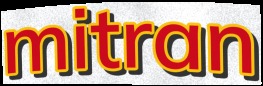
mitran